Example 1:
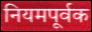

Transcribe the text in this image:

नियमपूर्वक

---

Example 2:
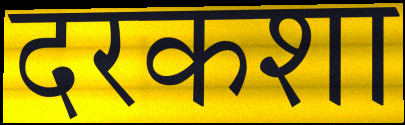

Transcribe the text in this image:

दरकशा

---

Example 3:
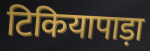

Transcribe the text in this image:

टिकियापाड़ा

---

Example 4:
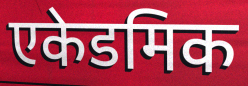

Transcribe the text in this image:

एकेडमिक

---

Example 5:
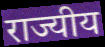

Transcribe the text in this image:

राज्‍यीय